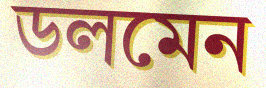
ডলমেন